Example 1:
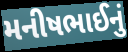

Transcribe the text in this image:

મનીષભાઈનું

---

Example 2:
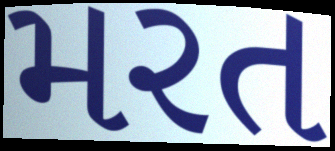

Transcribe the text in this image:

મરત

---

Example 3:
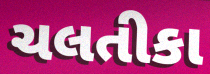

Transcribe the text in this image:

ચલતીકા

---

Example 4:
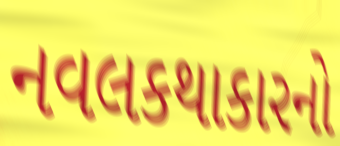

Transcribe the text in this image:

નવલકથાકારનો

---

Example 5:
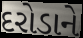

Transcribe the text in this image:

દરોડાને